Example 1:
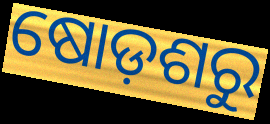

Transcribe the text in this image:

ଷୋଡ଼ଶରୁ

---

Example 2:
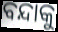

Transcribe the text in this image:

ବନ୍ଦାକୁ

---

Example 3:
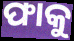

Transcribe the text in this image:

ଫାକୁ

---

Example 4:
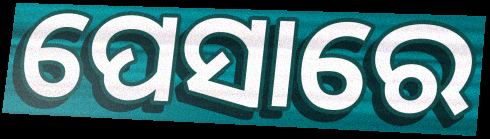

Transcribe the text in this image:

ପେସାରେ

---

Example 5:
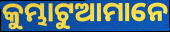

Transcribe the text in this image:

କୁମ୍ଭାଟୁଆମାନେ